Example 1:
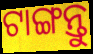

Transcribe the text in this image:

ଟାଙ୍ଗନ୍ତୁ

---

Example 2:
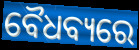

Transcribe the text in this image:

ବୈଧବ୍ୟରେ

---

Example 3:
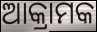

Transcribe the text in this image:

ଆକ୍ରାମକ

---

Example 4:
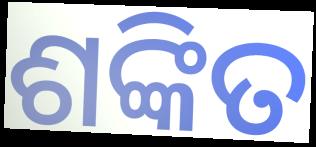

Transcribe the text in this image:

ଶଙ୍କିତ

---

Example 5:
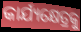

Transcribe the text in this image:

କାର୍ଯ୍ୟକ୍ଷେତ୍ରକୁ